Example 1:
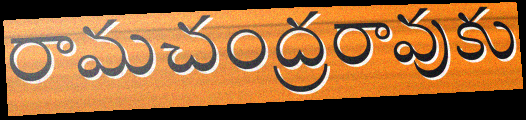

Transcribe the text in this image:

రామచంద్రరావుకు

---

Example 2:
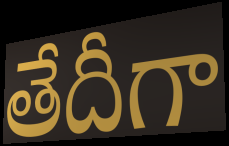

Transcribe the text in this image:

తేదీగా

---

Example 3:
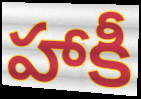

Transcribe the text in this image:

హాకీ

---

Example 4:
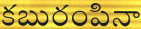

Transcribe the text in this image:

కబురంపినా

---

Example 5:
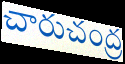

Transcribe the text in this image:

చారుచంద్ర